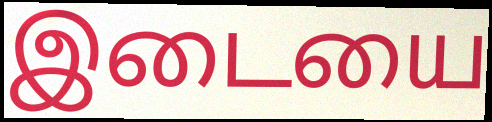
இடையை